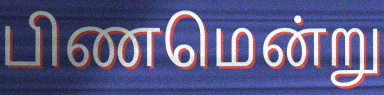
பிணமென்று